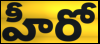
హీరో